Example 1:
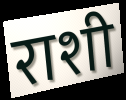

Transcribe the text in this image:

राशी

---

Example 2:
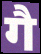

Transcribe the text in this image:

गै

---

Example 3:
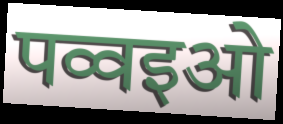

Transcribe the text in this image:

पव्वइओ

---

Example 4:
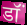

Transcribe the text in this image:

डॉं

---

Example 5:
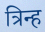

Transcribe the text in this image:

त्रिन्ह